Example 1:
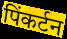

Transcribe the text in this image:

पिंकर्टन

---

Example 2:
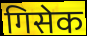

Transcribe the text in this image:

गिसेक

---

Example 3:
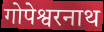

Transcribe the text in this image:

गोपेश्वरनाथ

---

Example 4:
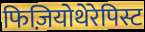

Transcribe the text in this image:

फिज़ियोथेरेपिस्ट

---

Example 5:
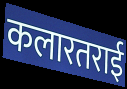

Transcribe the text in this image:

कलारतराई